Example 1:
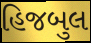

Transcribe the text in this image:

હિજબુલ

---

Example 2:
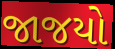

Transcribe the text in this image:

જાજયો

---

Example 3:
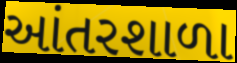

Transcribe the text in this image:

આંતરશાળા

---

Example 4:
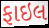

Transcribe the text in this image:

ફાઇલ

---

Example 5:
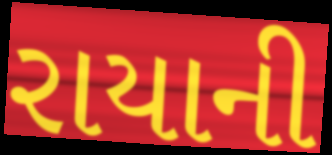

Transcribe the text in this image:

રાયાની